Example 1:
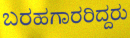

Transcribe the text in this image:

ಬರಹಗಾರರಿದ್ದರು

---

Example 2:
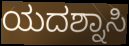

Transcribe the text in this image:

ಯದಶ್ನಾಸಿ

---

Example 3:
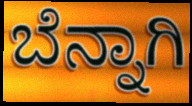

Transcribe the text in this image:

ಬೆನ್ನಾಗಿ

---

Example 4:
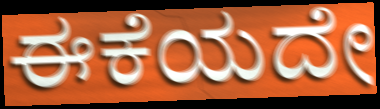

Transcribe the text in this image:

ಈಕೆಯದೇ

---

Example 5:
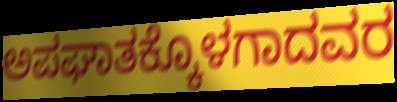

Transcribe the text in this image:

ಅಪಘಾತಕ್ಕೊಳಗಾದವರ